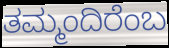
ತಮ್ಮಂದಿರೆಂಬ